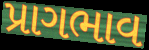
પ્રાગભાવ